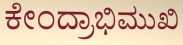
ಕೇಂದ್ರಾಭಿಮುಖಿ